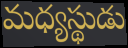
మధ్యస్థుడు